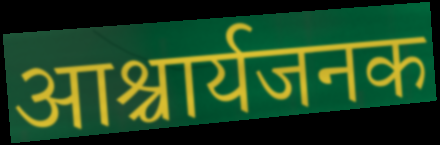
आश्चार्यजनक